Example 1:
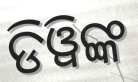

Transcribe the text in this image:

ଡିୱିଙ୍କ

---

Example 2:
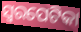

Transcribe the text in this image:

ସ୍ୱରପେଟିକା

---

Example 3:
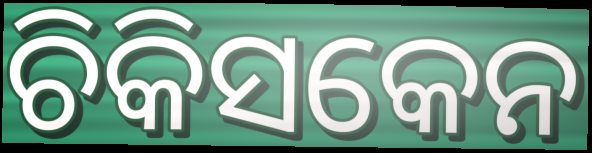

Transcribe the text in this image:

ଚିକିସକେନ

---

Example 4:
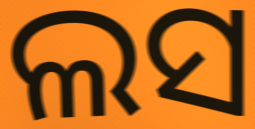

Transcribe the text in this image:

ଲସ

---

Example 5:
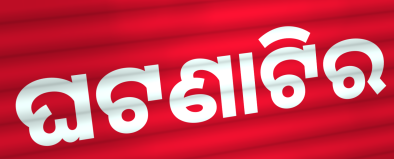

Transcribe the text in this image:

ଘଟଣାଟିର